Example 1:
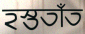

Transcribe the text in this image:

হস্ততাঁত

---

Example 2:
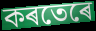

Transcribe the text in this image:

কৰতেৰে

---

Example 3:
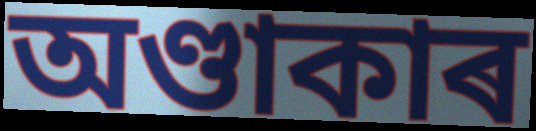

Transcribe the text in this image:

অণ্ডাকাৰ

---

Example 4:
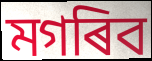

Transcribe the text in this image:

মগৰিব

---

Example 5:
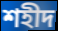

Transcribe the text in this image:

শহীদ